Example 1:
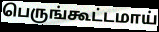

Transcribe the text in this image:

பெருங்கூட்டமாய்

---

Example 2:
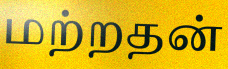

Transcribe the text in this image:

மற்றதன்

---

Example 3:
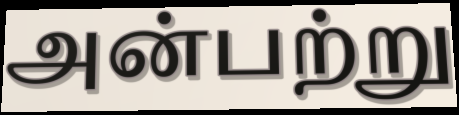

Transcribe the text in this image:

அன்பற்று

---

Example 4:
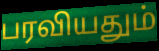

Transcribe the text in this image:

பரவியதும்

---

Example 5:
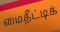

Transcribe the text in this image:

மைதீட்டிக்